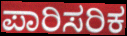
ಪಾರಿಸರಿಕ